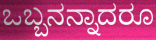
ಒಬ್ಬನನ್ನಾದರೂ